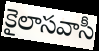
కైలాసవాసీ